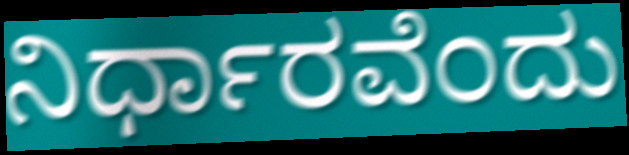
ನಿರ್ಧಾರವೆಂದು